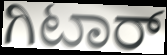
ಗಿಟಾರ್